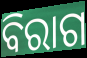
ବିରାଗ